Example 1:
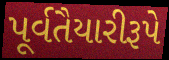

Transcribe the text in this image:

પૂર્વતૈયારીરૂપે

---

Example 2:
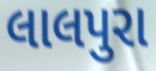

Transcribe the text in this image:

લાલપુરા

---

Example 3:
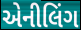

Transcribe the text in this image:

એનીલિંગ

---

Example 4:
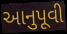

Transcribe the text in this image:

આનુપૂવી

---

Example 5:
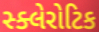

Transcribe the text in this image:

સ્ક્લેરોટિક